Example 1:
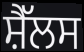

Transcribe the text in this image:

ਸ਼ੈੱਲਸ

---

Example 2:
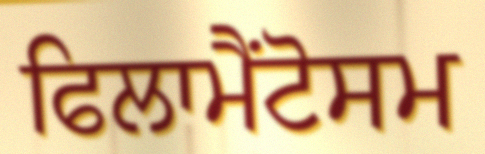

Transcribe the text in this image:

ਫਿਲਾਮੈਂਟੋਸਮ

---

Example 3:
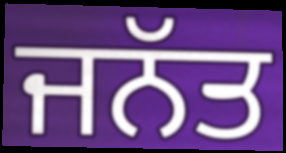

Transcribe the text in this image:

ਜਨੱਤ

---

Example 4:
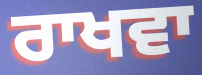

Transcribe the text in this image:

ਰਾਖਵਾ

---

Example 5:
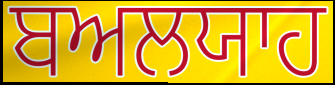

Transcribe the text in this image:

ਬਅਲਯਾਹ